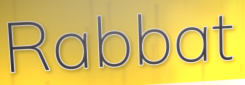
Rabbat